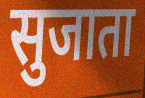
सुजाता